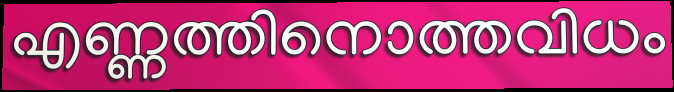
എണ്ണത്തിനൊത്തവിധം